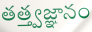
తత్త్వజ్ఞానం